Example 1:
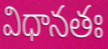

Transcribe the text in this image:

విధానతః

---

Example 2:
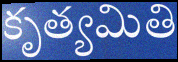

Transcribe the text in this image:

కృత్యమితి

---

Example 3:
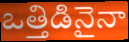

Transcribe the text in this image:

ఒత్తిడినైనా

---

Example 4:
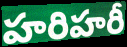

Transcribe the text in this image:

హరిహరీ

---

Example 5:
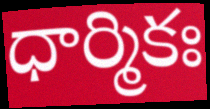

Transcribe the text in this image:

ధార్మికః